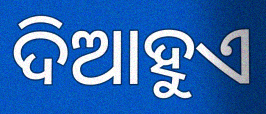
ଦିଆହୁଏ